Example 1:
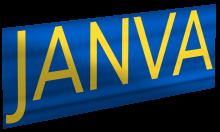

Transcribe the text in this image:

JANVA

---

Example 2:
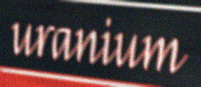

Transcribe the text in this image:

uranium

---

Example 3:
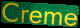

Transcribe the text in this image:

Creme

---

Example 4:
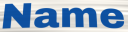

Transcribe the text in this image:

Name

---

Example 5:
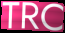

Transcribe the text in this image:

TRC